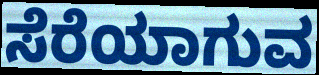
ಸೆರೆಯಾಗುವ